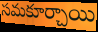
సమకూర్చాయి